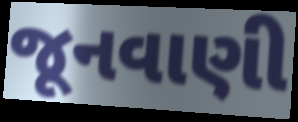
જૂનવાણી